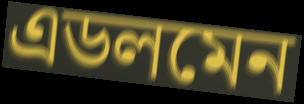
এডলমেন